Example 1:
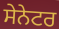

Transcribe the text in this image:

ਸੇਨੇਟਰ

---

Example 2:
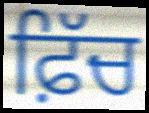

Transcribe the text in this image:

ਫ਼ਿੱਚ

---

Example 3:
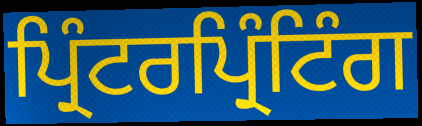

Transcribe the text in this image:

ਪ੍ਰਿੰਟਰਪ੍ਰਿੰਟਿੰਗ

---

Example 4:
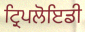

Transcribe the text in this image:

ਟ੍ਰਿਪਲੋਇਡੀ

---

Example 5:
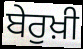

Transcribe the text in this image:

ਬੇਰੁਖ਼ੀ